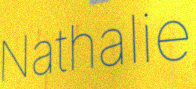
Nathalie